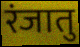
रंजातु